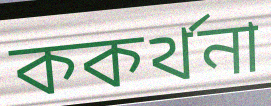
ককৰ্থনা